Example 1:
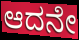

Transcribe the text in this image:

ಆದನೇ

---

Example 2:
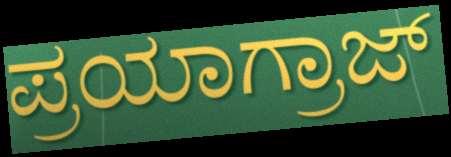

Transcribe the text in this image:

ಪ್ರಯಾಗ್ರಾಜ್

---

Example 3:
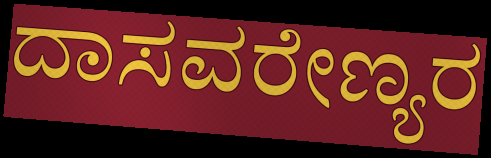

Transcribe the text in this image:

ದಾಸವರೇಣ್ಯರ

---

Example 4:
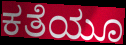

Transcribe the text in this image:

ಕತೆಯೂ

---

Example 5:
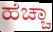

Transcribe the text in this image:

ಹೆಚ್ಚಾ